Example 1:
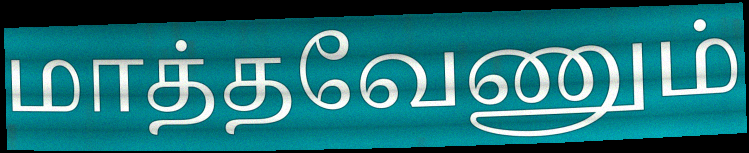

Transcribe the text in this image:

மாத்தவேணும்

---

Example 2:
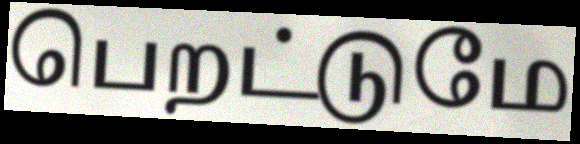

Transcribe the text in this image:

பெறட்டுமே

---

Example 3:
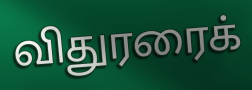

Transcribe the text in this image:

விதுரரைக்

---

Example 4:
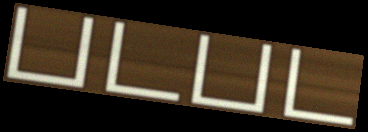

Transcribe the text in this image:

படபட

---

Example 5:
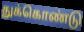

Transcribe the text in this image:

துக்கொண்டு